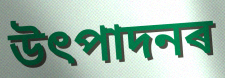
উৎপাদনৰ